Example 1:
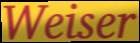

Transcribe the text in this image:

Weiser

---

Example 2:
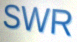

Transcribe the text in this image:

SWR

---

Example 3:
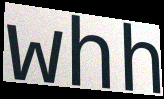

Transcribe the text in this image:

whh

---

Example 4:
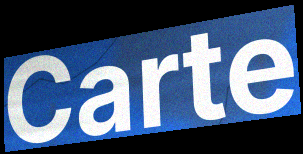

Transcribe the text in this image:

Carte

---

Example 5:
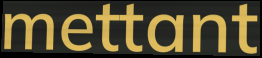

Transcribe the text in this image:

mettant